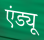
एंड्यू